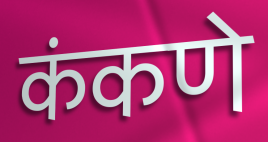
कंकणे